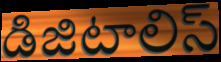
డిజిటాలిస్